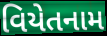
વિયેતનામ